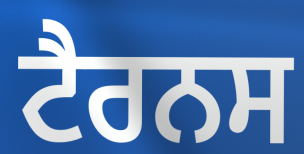
ਟੈਰਨਸ